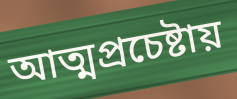
আত্মপ্রচেষ্টায়